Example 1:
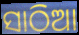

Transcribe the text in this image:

ସାଠିଆ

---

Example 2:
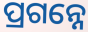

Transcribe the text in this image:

ପ୍ରଗନ୍ନେ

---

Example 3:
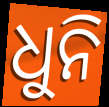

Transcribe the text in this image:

ଧୁନି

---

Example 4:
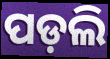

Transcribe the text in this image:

ପଡ଼ଲି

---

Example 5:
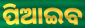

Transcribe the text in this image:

ପିଆଇବ